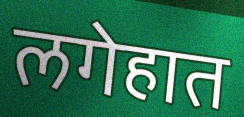
लगेहात